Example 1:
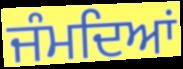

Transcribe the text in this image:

ਜੰਮਦਿਆਂ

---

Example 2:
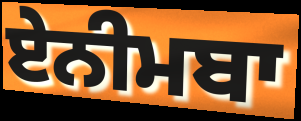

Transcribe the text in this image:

ਏਨੀਮਬਾ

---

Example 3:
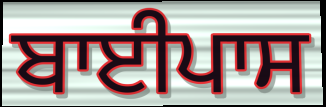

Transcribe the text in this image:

ਬਾਈਪਾਸ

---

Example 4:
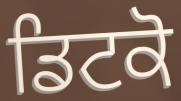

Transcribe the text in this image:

ਡਿਟਕੋ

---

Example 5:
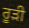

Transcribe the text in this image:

ਰੂੜੀ